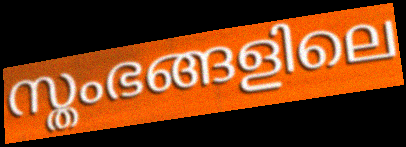
സ്തംഭങ്ങളിലെ